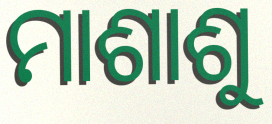
ମାଶାଶୁ